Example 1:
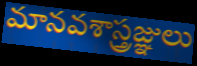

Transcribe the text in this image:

మానవశాస్త్రజ్ఞులు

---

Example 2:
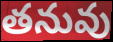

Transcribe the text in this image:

తనువు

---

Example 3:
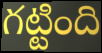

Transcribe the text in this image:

గట్టింది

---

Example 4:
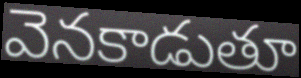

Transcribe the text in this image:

వెనకాడుతూ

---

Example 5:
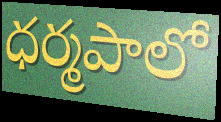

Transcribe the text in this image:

ధర్మపాలో